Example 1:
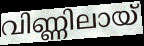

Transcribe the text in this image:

വിണ്ണിലായ്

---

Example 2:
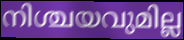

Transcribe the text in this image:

നിശ്ചയവുമില്ല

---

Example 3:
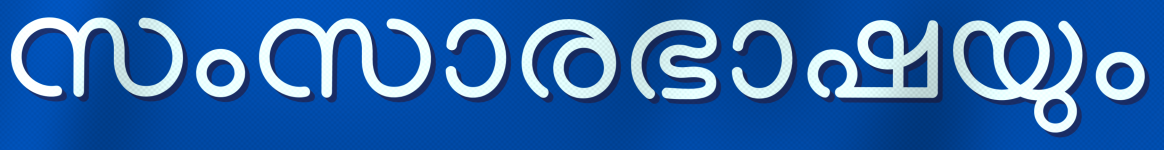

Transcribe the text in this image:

സംസാരഭാഷയും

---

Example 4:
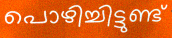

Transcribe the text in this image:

പൊഴിച്ചിട്ടുണ്ട്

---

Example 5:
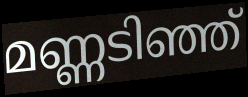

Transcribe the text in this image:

മണ്ണടിഞ്ഞ്